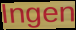
Ingen